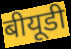
बीयूडी